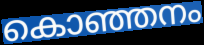
കൊഞ്ഞനം